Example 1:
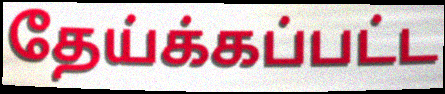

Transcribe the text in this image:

தேய்க்கப்பட்ட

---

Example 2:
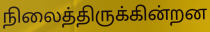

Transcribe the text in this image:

நிலைத்திருக்கின்றன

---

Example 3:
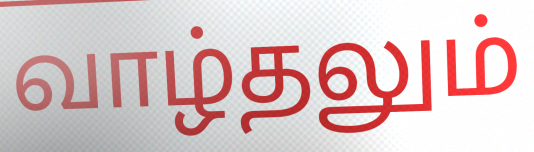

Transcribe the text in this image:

வாழ்தலும்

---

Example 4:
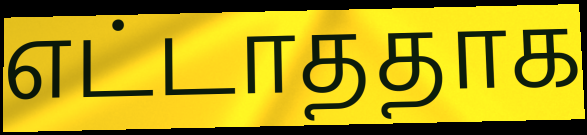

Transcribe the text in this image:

எட்டாததாக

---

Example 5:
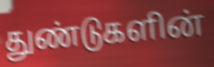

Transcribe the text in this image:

துண்டுகளின்